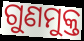
ଗୁଣମୁକ୍ତ